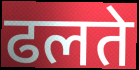
ढलते